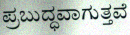
ಪ್ರಬುದ್ಧವಾಗುತ್ತವೆ